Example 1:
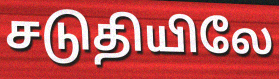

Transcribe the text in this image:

சடுதியிலே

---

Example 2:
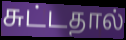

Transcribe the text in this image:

சுட்டதால்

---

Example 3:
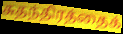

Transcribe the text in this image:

சுதந்திரத்தைக்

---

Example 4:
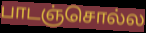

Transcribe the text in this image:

பாடஞ்சொல்ல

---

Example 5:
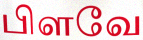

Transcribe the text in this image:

பிளவே